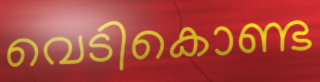
വെടികൊണ്ട